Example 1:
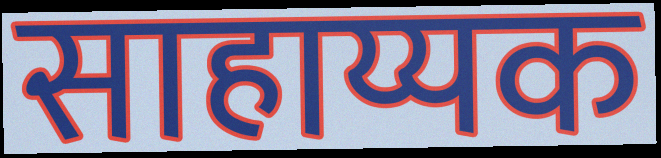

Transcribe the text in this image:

साहाय्यक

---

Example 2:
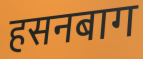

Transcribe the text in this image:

हसनबाग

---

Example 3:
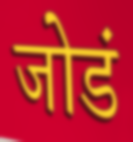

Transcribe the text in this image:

जोडं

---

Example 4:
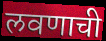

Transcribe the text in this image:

लवणाची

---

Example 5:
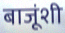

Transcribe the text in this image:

बाजूंशी